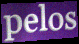
pelos